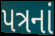
પત્રનાં